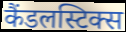
कैंडलस्टिक्स